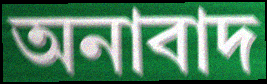
অনাবাদ